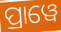
ପ୍ରାୱେ